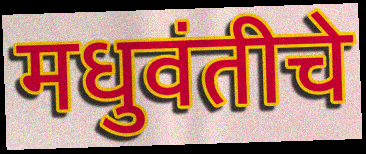
मधुवंतीचे